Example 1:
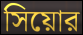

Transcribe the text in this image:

সিয়োর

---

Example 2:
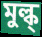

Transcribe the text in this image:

মুল্ক্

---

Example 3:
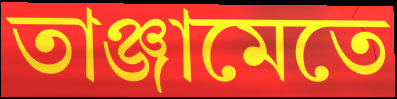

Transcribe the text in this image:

তাঞ্জামেতে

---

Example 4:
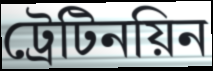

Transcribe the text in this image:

ট্রেটিনয়িন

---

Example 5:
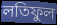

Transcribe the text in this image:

লতিফুল